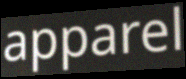
apparel